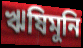
ঋষিমুনি